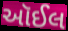
ઑઈલ